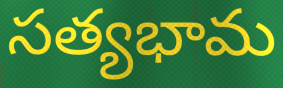
సత్యభామ